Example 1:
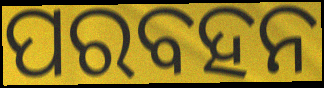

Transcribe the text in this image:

ପରବହନ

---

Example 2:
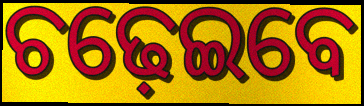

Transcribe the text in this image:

ଚଢ଼େଇବେ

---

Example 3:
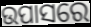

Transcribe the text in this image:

ଉପାସରେ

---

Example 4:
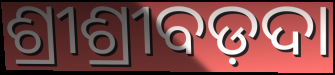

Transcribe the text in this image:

ଶ୍ରୀଶ୍ରୀବଡ଼ଦା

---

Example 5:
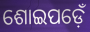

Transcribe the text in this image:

ଶୋଇପଡ଼େଁ